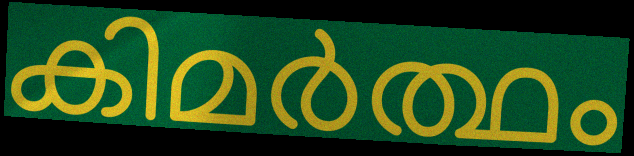
കിമർത്ഥം